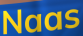
Naas